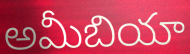
అమీబియా